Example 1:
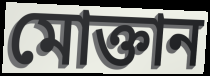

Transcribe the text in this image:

মোক্তান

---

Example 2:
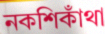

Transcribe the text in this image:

নকশিকাঁথা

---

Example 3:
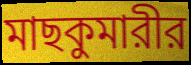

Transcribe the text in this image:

মাছকুমারীর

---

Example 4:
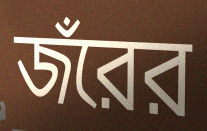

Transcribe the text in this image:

জঁরের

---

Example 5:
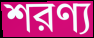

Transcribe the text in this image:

শরণ্য